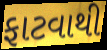
ફાટવાથી